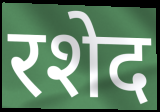
रशेद